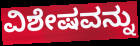
ವಿಶೇಷವನ್ನು